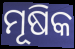
ମୂଷିକ